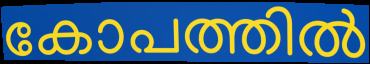
കോപത്തിൽ